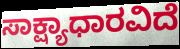
ಸಾಕ್ಷ್ಯಾಧಾರವಿದೆ